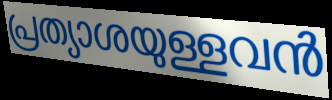
പ്രത്യാശയുള്ളവൻ